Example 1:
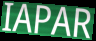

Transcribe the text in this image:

IAPAR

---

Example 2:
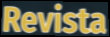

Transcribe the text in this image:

Revista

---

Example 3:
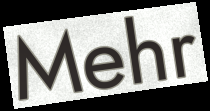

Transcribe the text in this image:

Mehr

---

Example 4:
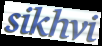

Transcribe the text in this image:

sikhvi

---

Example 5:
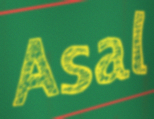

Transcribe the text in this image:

Asal